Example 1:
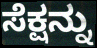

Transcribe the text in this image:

ಸೆಕ್ಷನ್ನು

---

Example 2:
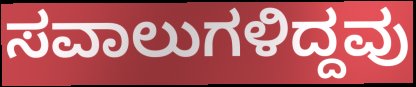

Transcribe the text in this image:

ಸವಾಲುಗಳಿದ್ದವು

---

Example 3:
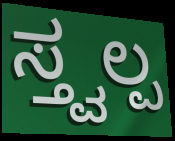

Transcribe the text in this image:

ಸ್ತ್ವಲ್ಪ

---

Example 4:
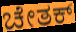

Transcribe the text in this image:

ಚೇತಕ್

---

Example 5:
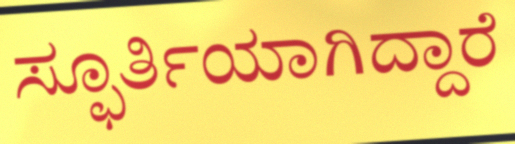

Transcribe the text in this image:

ಸ್ಫೂರ್ತಿಯಾಗಿದ್ದಾರೆ